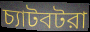
চ্যাটবটরা